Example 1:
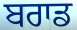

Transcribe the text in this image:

ਬਰਾਡ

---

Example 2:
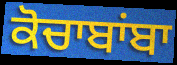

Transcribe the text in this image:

ਕੋਚਾਬਾਂਬਾ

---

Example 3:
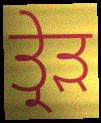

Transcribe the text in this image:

ਤ੍ਰੇੜ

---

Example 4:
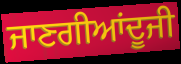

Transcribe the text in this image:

ਜਾਣਗੀਆਂਦੂਜੀ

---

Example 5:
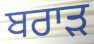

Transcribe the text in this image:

ਬਰਾਡ਼